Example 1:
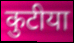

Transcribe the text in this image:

कुटीया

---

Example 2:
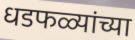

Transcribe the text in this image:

धडफळ्यांच्या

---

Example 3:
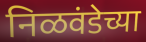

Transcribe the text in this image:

निळवंडेच्या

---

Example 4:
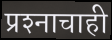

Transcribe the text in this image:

प्रश्नाचाही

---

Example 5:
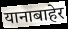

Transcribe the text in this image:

यानाबाहेर